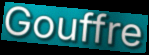
Gouffre